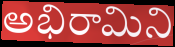
అభిరామిని